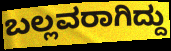
ಬಲ್ಲವರಾಗಿದ್ದು